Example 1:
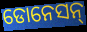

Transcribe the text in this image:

ଡୋନେସନ୍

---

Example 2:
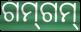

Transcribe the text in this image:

ଗମ୍‍ଗମ୍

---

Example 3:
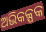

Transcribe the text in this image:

ଅଭିକଳ୍ପକ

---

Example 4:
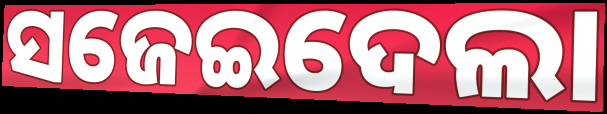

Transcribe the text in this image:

ସଜେଇଦେଲା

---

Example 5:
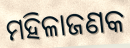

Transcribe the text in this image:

ମହିଳାଜଣକ